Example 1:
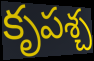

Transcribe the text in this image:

కృపశ్చ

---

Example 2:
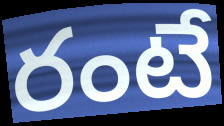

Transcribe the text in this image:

రంటే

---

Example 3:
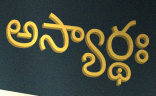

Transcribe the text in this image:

అస్యార్థః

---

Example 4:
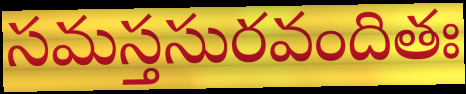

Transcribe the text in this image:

సమస్తసురవందితః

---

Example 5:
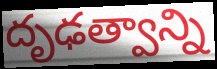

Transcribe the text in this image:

దృఢత్వాన్ని